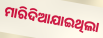
ମାରିଦିଆଯାଇଥିଲା